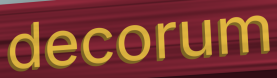
decorum